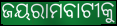
ଜୟରାମବାଟୀକୁ